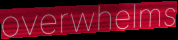
overwhelms